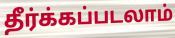
தீர்க்கப்படலாம்